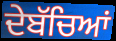
ਦੇਬੱਚਿਆਂ